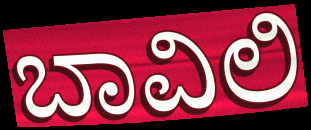
ಬಾವಿಲಿ